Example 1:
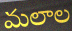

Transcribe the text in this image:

మలాల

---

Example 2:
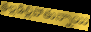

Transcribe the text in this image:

తల్లడిల్లిపోతున్నాయి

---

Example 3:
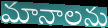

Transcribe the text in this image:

మానాలను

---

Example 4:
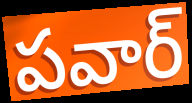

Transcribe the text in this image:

పవార్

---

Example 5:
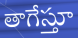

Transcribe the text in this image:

తాగేస్తూ